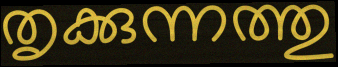
തൃക്കുന്നത്തു